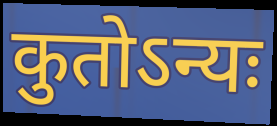
कुतोऽन्यः